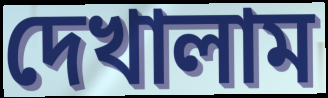
দেখালাম